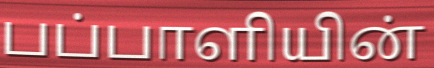
பப்பாளியின்